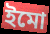
ইমো